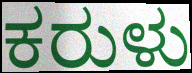
ಕರುಳು